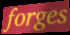
forges